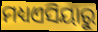
ମଧ୍ୟଏସିୟାରୁ